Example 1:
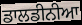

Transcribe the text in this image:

ਡਾਲਡੀਨੀਆ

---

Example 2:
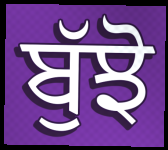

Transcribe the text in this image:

ਬੁੱਝੋ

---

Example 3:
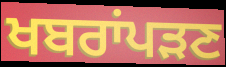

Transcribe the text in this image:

ਖਬਰਾਂਪੜਣ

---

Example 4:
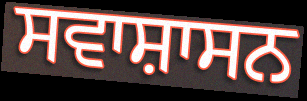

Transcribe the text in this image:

ਸਵਾਸ਼ਾਸਨ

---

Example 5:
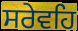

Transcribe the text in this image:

ਸਰੇਵਹਿ